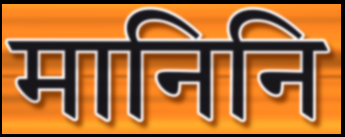
मानिनि